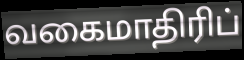
வகைமாதிரிப்